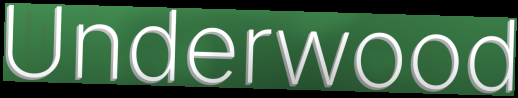
Underwood